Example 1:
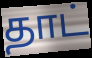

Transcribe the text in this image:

தாட்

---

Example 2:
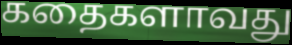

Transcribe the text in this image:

கதைகளாவது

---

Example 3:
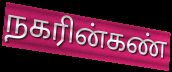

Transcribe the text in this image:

நகரின்கண்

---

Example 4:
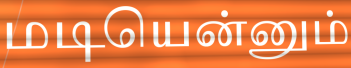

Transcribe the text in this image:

மடியென்னும்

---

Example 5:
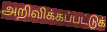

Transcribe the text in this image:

அறிவிக்கப்பட்டுக்